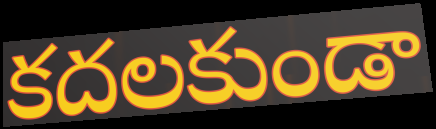
కదలకుండా